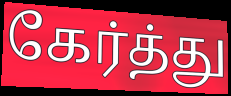
கேர்த்து